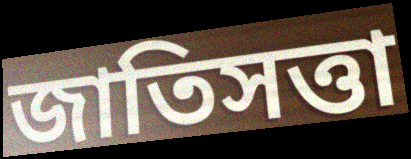
জাতিসত্তা